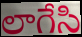
లాగేసి